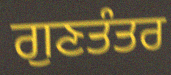
ਗੁਣਤੰਤਰ